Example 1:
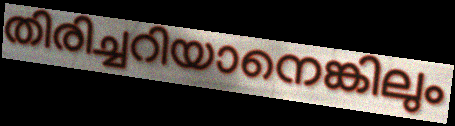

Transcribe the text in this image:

തിരിച്ചറിയാനെങ്കിലും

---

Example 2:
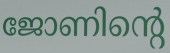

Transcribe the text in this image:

ജോണിന്റെ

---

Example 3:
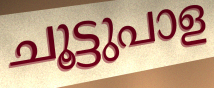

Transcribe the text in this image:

ചൂട്ടുപാള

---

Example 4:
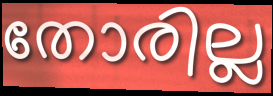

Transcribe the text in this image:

തോരില്ല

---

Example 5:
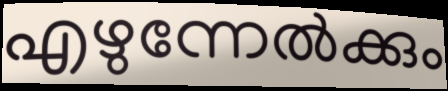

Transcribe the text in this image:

എഴുന്നേൽക്കും